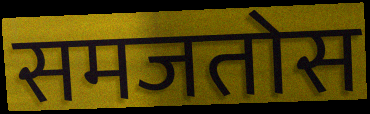
समजतोस